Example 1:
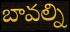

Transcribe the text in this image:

బావల్ని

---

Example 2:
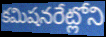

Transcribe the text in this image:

కమిషనరేట్లోని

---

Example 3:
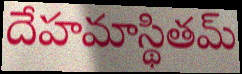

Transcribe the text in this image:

దేహమాస్థితమ్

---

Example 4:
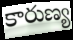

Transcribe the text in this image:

కారుణ్య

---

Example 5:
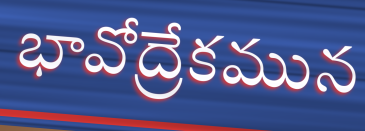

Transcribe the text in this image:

భావోద్రేకమున